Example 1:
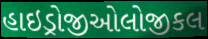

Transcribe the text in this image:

હાઇડ્રોજીઓલોજીકલ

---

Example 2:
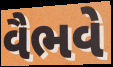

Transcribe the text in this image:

વૈભવે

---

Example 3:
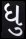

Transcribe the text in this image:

ધુ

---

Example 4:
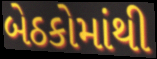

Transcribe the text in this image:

બેઠકોમાંથી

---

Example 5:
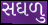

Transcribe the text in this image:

સઘળુ